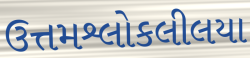
ઉત્તમશ્લોકલીલયા